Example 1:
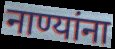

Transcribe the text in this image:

नाण्यांना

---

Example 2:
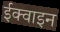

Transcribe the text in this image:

ईक्वाइन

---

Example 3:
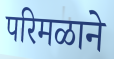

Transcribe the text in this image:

परिमळाने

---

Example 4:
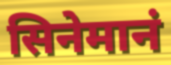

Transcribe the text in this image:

सिनेमानं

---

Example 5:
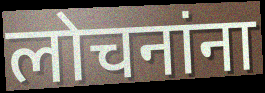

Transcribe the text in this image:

लोचनांना